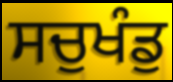
ਸਚੁਖੰਡੁ